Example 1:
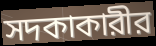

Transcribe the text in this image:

সদকাকারীর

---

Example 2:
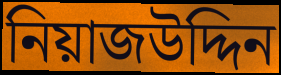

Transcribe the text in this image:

নিয়াজউদ্দিন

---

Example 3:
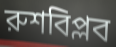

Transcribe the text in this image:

রুশবিপ্লব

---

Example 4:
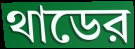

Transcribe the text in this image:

থাডের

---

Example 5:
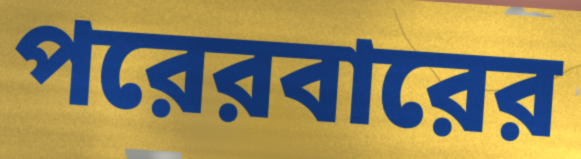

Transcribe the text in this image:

পরেরবারের